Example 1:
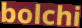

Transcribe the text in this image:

bolchi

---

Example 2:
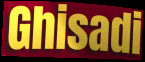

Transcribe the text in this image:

Ghisadi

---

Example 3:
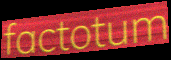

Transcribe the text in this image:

factotum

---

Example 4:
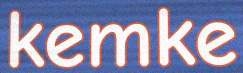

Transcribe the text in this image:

kemke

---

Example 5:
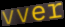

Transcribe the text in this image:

vver